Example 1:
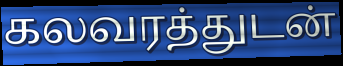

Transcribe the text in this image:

கலவரத்துடன்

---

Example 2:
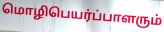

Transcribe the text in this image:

மொழிபெயர்ப்பாளரும்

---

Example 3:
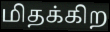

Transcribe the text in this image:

மிதக்கிற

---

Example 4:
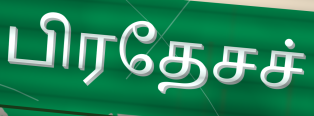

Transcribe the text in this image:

பிரதேசச்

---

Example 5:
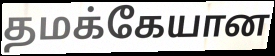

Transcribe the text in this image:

தமக்கேயான